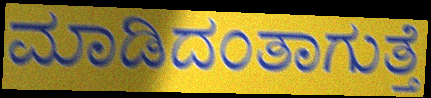
ಮಾಡಿದಂತಾಗುತ್ತೆ